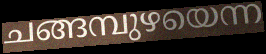
ചങ്ങമ്പുഴയെന്ന